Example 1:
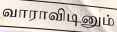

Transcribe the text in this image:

வாராவிடினும்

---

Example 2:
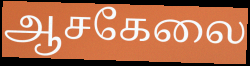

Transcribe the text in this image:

ஆசகேலை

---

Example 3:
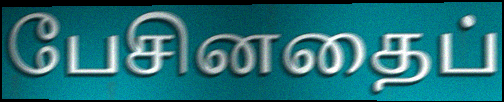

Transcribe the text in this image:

பேசினதைப்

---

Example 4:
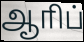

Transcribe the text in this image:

ஆரிப்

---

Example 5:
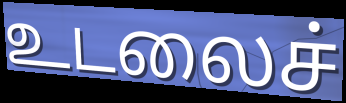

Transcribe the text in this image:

உடலைச்